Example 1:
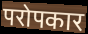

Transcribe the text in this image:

परोपकार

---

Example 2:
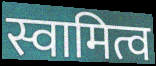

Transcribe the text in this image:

स्वामित्व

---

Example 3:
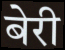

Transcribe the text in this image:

बेरी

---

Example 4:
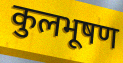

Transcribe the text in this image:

कुलभूषण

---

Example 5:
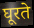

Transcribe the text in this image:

घूरते